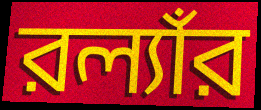
রল্যাঁর